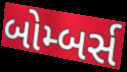
બોમ્બર્સ